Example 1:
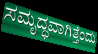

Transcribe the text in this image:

ಸಮೃದ್ಧವಾಗಿತ್ತೆಂದು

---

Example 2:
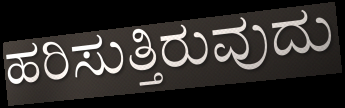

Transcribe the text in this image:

ಹರಿಸುತ್ತಿರುವುದು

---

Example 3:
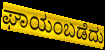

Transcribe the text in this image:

ಘಾಯಂಬಡೆದು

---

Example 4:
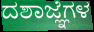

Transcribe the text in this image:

ದಶಾಜ್ಞೆಗಳ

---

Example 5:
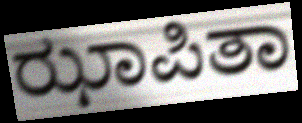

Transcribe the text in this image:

ಝಾಪಿತಾ